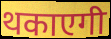
थकाएगी